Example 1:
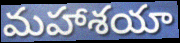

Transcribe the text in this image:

మహాశయా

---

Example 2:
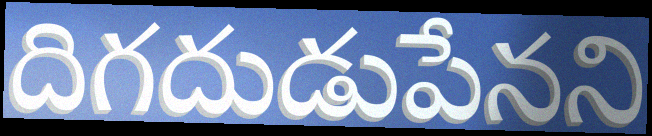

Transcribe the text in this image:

దిగదుడుపేనని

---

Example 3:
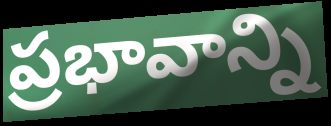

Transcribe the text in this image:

ప్రభావాన్ని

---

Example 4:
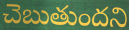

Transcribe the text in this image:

చెబుతుందని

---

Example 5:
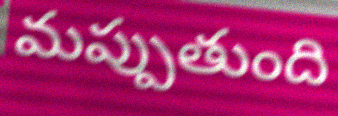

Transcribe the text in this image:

మప్పుతుంది